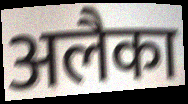
अलैका